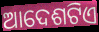
ଆଦେଶଟିଏ